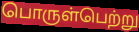
பொருள்பெற்று